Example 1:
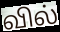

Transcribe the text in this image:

வில்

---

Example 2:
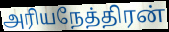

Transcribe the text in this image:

அரியநேத்திரன்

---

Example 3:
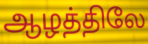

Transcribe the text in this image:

ஆழத்திலே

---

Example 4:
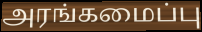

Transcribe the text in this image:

அரங்கமைப்பு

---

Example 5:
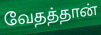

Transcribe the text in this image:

வேதத்தான்